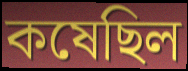
কষেছিল